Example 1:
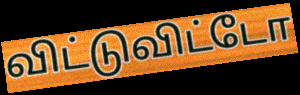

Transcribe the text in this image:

விட்டுவிட்டோ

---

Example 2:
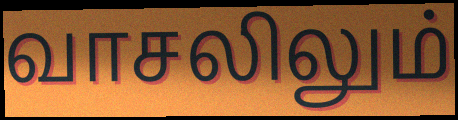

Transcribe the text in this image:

வாசலிலும்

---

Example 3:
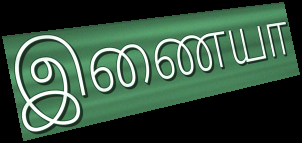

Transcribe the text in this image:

இணையா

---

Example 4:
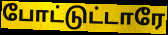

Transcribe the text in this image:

போட்டுட்டாரே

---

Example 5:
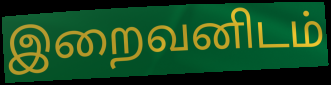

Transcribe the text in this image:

இறைவனிடம்